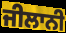
ਜੀਲਾਨੀ